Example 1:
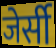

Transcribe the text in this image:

जेर्सी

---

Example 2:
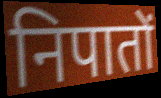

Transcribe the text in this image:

निपातों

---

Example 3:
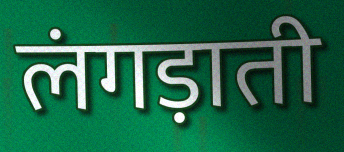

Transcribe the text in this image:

लंगड़ाती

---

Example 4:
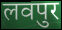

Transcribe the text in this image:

लवपुर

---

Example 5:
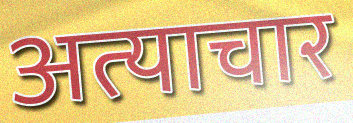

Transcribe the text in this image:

अत्‍याचार